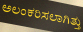
ಅಲಂಕರಿಸಲಾಗಿತ್ತು